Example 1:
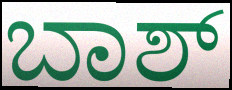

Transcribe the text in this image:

ಬಾಶ್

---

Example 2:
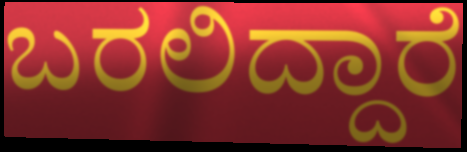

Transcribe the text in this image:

ಬರಲಿದ್ದಾರೆ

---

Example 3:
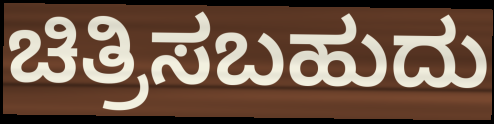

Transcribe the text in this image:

ಚಿತ್ರಿಸಬಹುದು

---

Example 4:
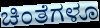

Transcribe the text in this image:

ಚಿಂತೆಗಳೂ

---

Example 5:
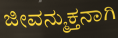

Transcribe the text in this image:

ಜೀವನ್ಮುಕ್ತನಾಗಿ